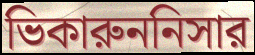
ভিকারুননিসার